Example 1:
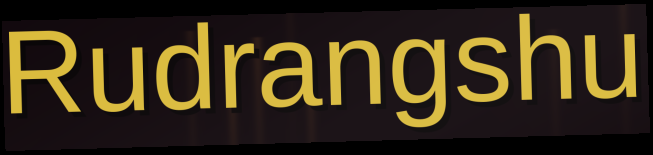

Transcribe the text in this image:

Rudrangshu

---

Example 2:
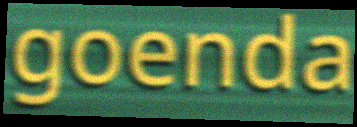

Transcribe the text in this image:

goenda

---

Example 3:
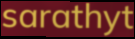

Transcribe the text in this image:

sarathyt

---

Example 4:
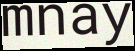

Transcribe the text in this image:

mnay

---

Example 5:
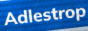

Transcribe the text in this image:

Adlestrop